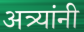
अत्र्यांनी